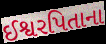
ઈશ્વરપિતાના